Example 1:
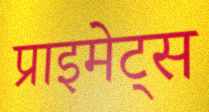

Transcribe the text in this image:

प्राइमेट्स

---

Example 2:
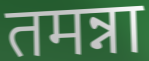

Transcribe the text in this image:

तमन्ना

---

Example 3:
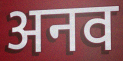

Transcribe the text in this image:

अनव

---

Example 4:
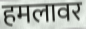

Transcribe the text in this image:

हमलावर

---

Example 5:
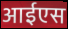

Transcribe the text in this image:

आईएस